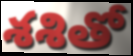
శశితో